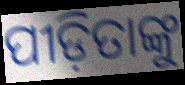
ପୀଡ଼ିତାଙ୍କୁ